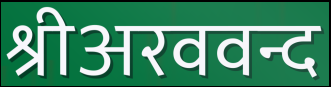
श्रीअरववन्द